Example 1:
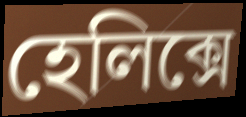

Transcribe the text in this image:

হেলিক্সে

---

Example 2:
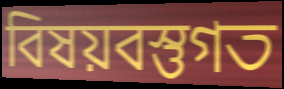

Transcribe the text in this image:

বিষয়বস্তুগত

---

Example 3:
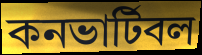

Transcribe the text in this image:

কনভার্টিবল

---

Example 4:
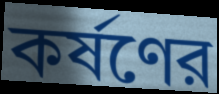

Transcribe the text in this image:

কর্ষণের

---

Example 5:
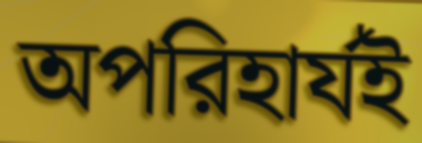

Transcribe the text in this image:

অপরিহার্যই